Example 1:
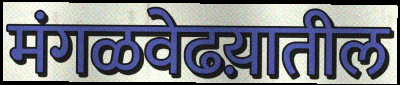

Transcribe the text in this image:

मंगळवेढय़ातील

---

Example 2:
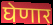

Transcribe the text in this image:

घेणार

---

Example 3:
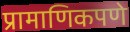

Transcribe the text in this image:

प्रामाणिकपणे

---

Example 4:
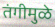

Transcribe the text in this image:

तंगीमुळे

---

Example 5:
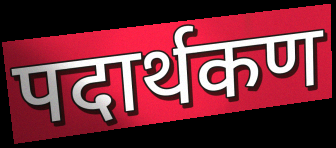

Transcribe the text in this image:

पदार्थकण